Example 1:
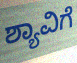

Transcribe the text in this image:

ಶ್ಯಾವಿಗೆ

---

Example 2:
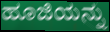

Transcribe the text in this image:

ಹೂಜಿಯನ್ನು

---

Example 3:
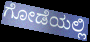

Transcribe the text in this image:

ಗೋಡೆಯಲ್ಲಿ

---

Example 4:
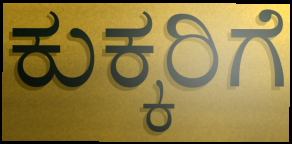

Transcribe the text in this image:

ಕುಕ್ಕರಿಗೆ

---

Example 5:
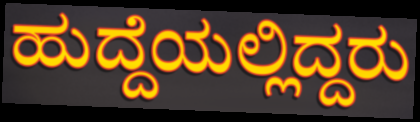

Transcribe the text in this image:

ಹುದ್ದೆಯಲ್ಲಿದ್ದರು